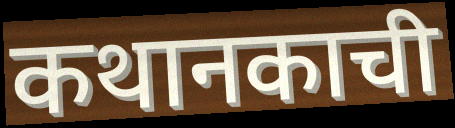
कथानकाची